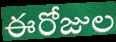
ఈరోజుల